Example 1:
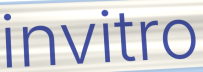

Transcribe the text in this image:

invitro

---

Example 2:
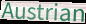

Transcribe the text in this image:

Austrian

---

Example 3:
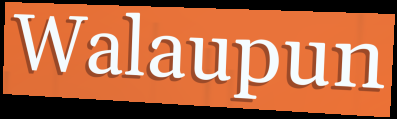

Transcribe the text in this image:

Walaupun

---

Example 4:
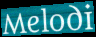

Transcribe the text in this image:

Melodi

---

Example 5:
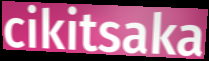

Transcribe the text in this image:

cikitsaka